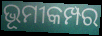
ଭୂମୀକମ୍ପର